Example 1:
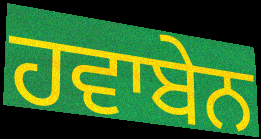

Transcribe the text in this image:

ਹਵਾਬੇਨ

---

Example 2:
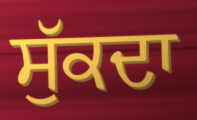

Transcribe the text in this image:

ਸੁੱਕਦਾ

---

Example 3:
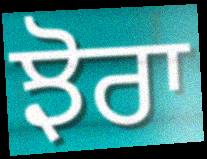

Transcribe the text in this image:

ਝੋਰਾ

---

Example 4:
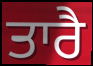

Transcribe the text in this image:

ਤਾਰੈ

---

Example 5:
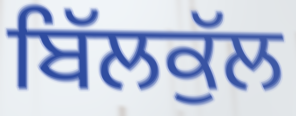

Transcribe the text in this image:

ਬਿੱਲਕੁੱਲ